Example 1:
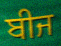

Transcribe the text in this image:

ਬੀਜ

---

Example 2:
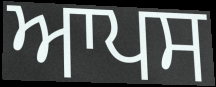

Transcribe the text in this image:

ਆਪਸ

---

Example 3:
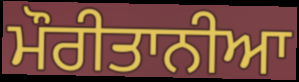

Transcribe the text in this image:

ਮੌਰੀਤਾਨੀਆ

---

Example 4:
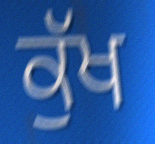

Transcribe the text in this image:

ਕੁੱਖ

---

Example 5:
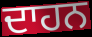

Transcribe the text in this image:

ਦਾਹਨ